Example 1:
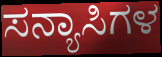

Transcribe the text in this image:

ಸನ್ಯಾಸಿಗಳ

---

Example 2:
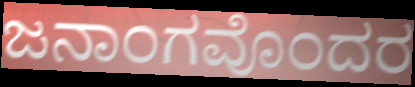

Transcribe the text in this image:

ಜನಾಂಗವೊಂದರ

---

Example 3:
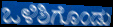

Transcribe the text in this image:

ಒಳಿಶಿಗೊಂಡು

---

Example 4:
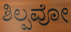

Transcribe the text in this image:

ಶಿಲ್ಪವೋ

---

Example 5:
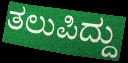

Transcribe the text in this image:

ತಲುಪಿದ್ದು